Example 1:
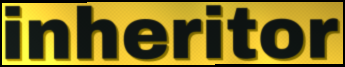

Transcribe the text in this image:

inheritor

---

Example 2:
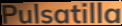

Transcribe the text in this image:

Pulsatilla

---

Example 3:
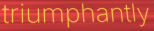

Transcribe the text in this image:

triumphantly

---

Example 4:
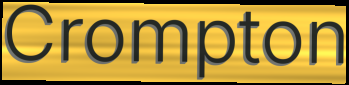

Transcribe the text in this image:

Crompton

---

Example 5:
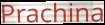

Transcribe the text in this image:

Prachina